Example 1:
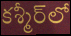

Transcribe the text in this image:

కశ్మీర్‌లో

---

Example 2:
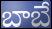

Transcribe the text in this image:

బాబే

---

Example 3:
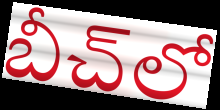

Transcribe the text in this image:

బీచ్‌లో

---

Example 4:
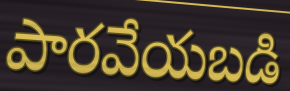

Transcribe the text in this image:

పారవేయబడి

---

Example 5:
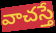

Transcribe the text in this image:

వాచస్తే